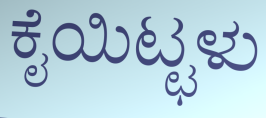
ಕೈಯಿಟ್ಟಳು